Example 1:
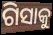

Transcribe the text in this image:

ଗିସାକୁ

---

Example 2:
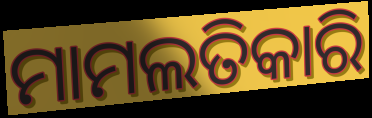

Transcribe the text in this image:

ମାମଲତିକାରି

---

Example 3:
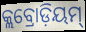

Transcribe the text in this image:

କ୍ଲବ୍ରୋଡ଼ିୟମ୍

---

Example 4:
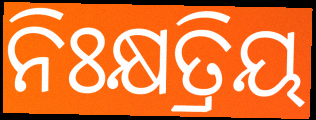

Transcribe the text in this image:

ନିଃକ୍ଷତ୍ରିୟ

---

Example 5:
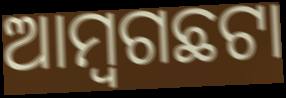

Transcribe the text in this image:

ଆମ୍ବଗଛଟା